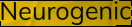
Neurogenic